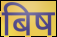
बिष